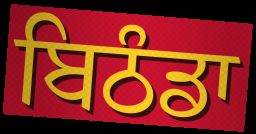
ਬਿਠੰਡਾ